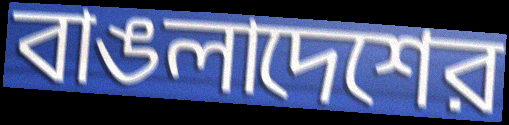
বাঙলাদেশের